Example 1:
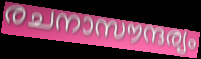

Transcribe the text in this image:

രചനാസൗന്ദര്യം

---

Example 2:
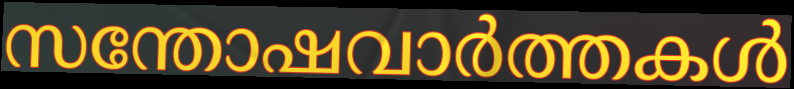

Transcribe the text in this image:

സന്തോഷവാർത്തകൾ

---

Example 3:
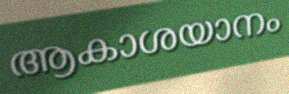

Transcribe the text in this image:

ആകാശയാനം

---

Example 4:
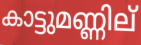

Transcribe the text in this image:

കാട്ടുമണ്ണില്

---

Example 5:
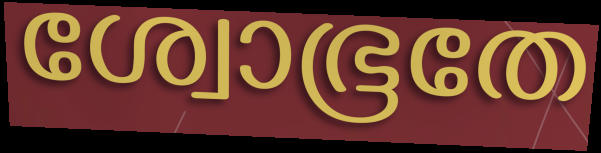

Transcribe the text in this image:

ശ്വോഭൂതേ